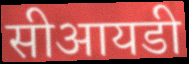
सीआयडी